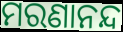
ମରଣାନନ୍ଦ